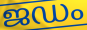
ജഡം